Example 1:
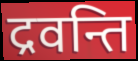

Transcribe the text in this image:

द्रवन्ति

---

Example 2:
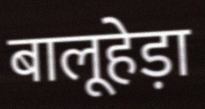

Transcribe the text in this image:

बालूहेड़ा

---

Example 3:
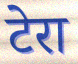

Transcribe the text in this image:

टेरा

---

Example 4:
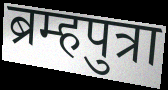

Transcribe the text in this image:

ब्रम्हपुत्रा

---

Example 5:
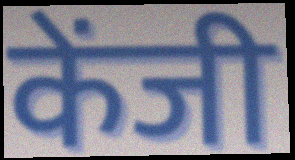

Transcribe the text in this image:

केंजी